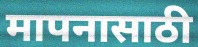
मापनासाठी